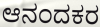
ಆನಂದಕರ